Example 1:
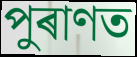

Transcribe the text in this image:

পুৰাণত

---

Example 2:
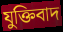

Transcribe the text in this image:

যুক্তিবাদ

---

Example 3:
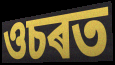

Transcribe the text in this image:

ওচৰত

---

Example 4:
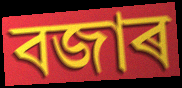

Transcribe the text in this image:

বজাৰ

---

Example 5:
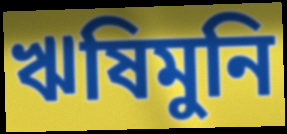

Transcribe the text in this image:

ঋষিমুনি